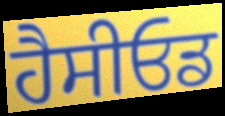
ਹੈਸੀਓਡ